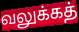
வலுக்கத்